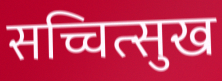
सच्चित्सुख